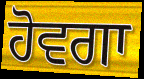
ਹੋਵਗਾ